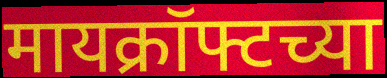
मायक्रॉफ्टच्या